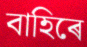
বাহিৰে